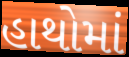
હાથોમાં